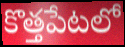
కొత్తపేటలో